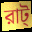
রাট্